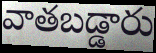
వాతబడ్డారు